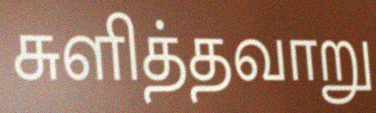
சுளித்தவாறு